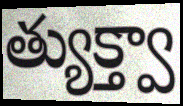
త్యుక్త్వా